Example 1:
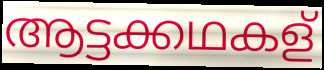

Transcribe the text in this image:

ആട്ടക്കഥകള്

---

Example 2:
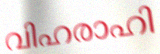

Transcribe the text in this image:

വിഹരാഹി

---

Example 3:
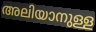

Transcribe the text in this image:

അലിയാനുള്ള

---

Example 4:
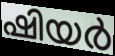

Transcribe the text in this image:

ഷിയർ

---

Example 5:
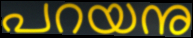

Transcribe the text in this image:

പറയനു